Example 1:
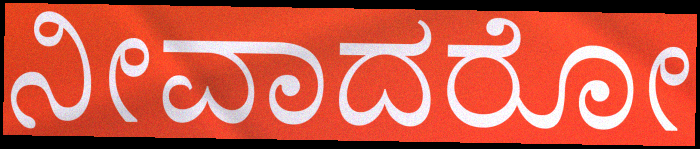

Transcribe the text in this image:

ನೀವಾದರೋ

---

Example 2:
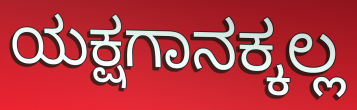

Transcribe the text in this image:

ಯಕ್ಷಗಾನಕ್ಕಲ್ಲ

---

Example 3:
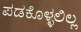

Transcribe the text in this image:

ಪಡಕೊಳ್ಳಲಿಲ್ಲ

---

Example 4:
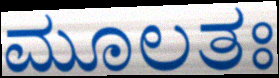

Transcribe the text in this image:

ಮೂಲತಃ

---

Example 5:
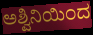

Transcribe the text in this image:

ಅಶ್ವಿನಿಯಿಂದ